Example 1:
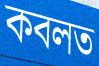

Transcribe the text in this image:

কবলত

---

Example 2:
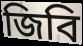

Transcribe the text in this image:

জিবি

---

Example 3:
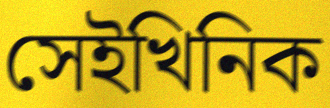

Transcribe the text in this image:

সেইখিনিক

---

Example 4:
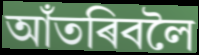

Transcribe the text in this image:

আঁতৰিবলৈ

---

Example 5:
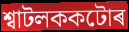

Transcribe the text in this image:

শ্বাটলককটোৰ